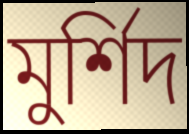
মুর্শিদ